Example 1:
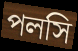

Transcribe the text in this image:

পলসি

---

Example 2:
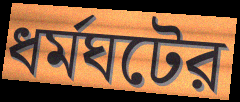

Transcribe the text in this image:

ধর্মঘটের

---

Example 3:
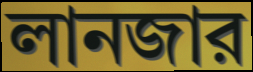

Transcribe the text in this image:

লানজার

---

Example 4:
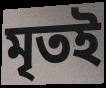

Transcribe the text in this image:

মৃতই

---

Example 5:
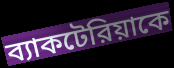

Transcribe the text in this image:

ব্যাকটেরিয়াকে